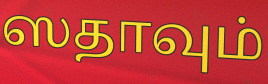
ஸதாவும்